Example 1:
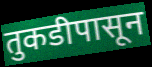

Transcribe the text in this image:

तुकडीपासून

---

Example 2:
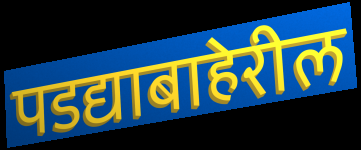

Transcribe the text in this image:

पडद्याबाहेरील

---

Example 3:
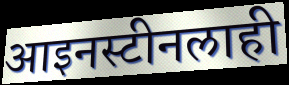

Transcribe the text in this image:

आइनस्टीनलाही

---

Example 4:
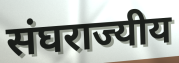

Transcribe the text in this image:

संघराज्यीय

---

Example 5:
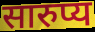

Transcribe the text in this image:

सारुप्य